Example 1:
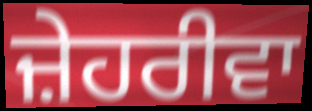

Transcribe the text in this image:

ਜ਼ੇਹਰੀਵਾ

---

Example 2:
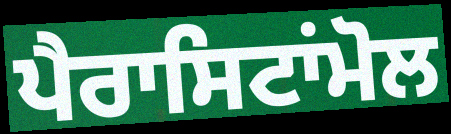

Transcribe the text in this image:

ਪੈਰਾਸਿਟਾਂਮੋਲ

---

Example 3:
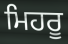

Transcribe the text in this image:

ਮਿਹਰੂ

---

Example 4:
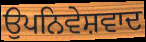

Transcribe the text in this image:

ਉਪਨਿਵੇਸ਼ਵਾਦ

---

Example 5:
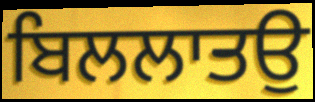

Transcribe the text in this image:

ਬਿਲਲਾਤਉ